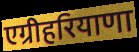
एग्रीहरियाणा